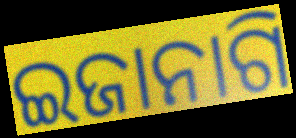
ଇଜାନାଗି